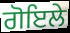
ਗੋਇਲੇ